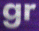
gr